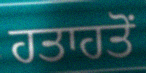
ਹਤਾਹਤੋਂ